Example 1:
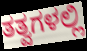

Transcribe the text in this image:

ತತ್ವಗಳಲ್ಲಿ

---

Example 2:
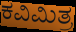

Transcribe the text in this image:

ಕವಿಮಿತ್ರ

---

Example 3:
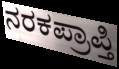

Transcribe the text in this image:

ನರಕಪ್ರಾಪ್ತಿ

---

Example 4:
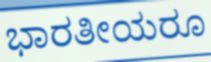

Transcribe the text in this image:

ಭಾರತೀಯರೂ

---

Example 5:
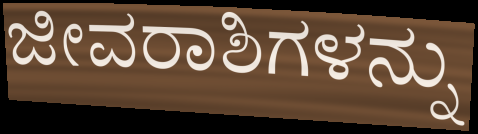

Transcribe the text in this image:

ಜೀವರಾಶಿಗಳನ್ನು